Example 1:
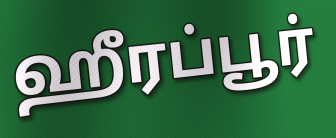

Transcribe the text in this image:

ஹீரப்பூர்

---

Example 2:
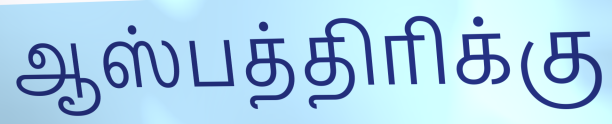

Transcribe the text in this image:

ஆஸ்பத்திரிக்கு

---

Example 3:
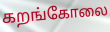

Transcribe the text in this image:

கறங்கோலை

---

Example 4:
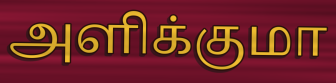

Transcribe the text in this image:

அளிக்குமா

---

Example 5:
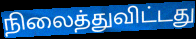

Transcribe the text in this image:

நிலைத்துவிட்டது